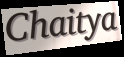
Chaitya